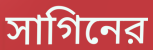
সাগিনের